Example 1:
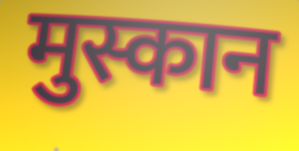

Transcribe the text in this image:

मुस्‍कान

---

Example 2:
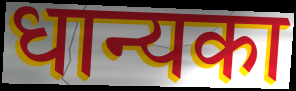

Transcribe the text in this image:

धान्यका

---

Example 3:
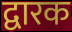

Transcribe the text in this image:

द्वारक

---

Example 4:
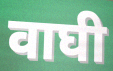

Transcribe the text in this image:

वाघी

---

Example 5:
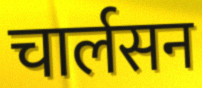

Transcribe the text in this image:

चार्लसन